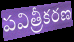
పవిత్రీకరణ